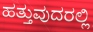
ಹತ್ತುವುದರಲ್ಲಿ